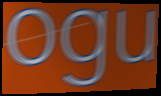
ogu